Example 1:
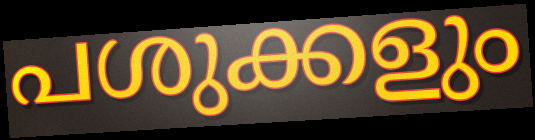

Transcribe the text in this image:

പശുക്കളും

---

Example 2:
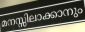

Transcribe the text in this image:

മനസ്സിലാക്കാനും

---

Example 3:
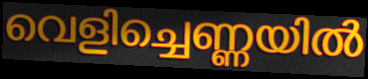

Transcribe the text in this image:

വെളിച്ചെണ്ണയിൽ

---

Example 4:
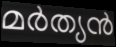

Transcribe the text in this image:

മർത്യൻ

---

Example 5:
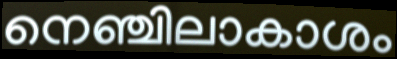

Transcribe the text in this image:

നെഞ്ചിലാകാശം